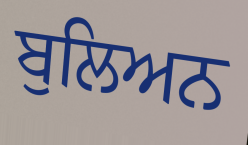
ਬੁਲਿਅਨ